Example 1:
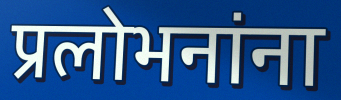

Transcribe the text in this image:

प्रलोभनांना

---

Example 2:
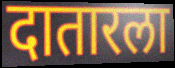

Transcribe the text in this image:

दातारला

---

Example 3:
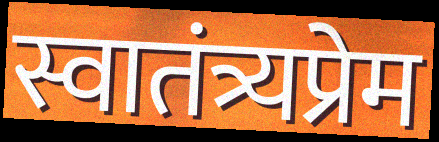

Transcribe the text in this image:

स्वातंत्र्यप्रेम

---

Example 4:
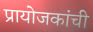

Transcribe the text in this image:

प्रायोजकांची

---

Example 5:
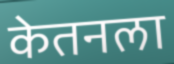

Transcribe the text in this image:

केतनला